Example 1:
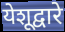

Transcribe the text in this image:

येशूद्वारे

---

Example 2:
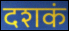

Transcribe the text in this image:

दशकं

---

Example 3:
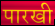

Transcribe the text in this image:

पारखी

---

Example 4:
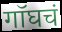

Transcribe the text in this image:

गॉघचं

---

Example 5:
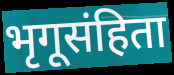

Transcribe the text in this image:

भृगूसंहिता